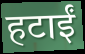
हटाईं